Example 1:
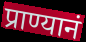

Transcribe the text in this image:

प्राण्यानं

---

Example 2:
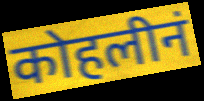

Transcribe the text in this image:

कोहलीनं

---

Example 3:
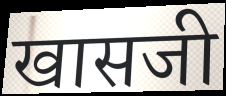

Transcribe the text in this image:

खासजी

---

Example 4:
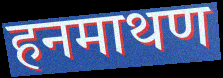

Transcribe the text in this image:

हनमाथण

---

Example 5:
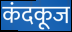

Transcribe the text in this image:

कंदकूज